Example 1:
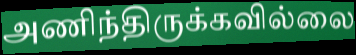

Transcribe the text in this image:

அணிந்திருக்கவில்லை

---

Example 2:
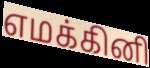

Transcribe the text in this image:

எமக்கினி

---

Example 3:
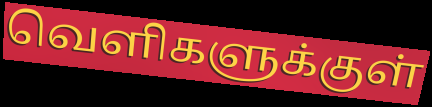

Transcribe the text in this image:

வெளிகளுக்குள்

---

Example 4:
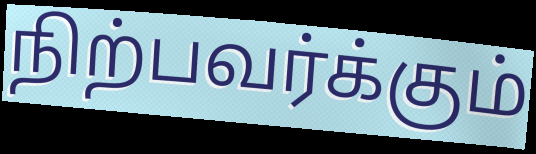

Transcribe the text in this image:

நிற்பவர்க்கும்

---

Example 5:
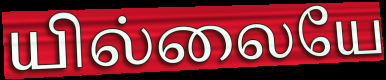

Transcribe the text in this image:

யில்லையே